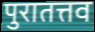
पुरातत्तव